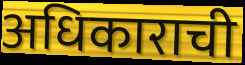
अधिकाराची